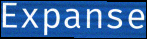
Expanse